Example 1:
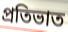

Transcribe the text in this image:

প্রতিভাত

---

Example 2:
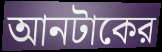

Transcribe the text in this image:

আনটাকের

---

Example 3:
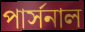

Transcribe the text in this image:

পার্সনাল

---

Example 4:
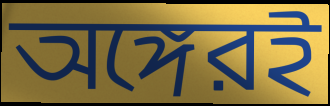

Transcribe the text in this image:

অঙ্গেরই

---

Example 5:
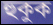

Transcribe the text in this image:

হুকুক